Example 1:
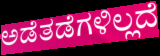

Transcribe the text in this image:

ಅಡೆತಡೆಗಳಿಲ್ಲದೆ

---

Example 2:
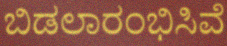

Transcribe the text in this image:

ಬಿಡಲಾರಂಭಿಸಿವೆ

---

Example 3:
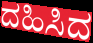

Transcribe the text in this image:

ದಹಿಸಿದ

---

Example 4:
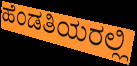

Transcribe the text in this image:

ಹೆಂಡತಿಯರಲ್ಲಿ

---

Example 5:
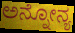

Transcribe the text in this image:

ಅನ್ನೋನ್ಯ